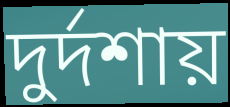
দুর্দশায়